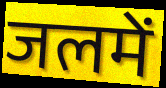
जलमें